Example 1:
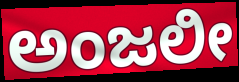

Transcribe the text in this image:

ಅಂಜಲೀ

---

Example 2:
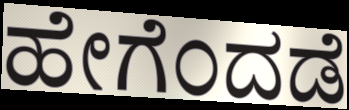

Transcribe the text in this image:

ಹೇಗೆಂದಡೆ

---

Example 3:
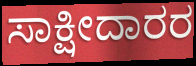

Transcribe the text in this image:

ಸಾಕ್ಷೀದಾರರ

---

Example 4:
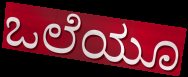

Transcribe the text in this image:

ಒಲೆಯೂ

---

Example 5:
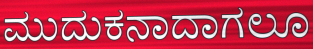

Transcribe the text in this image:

ಮುದುಕನಾದಾಗಲೂ